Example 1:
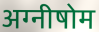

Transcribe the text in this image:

अग्नीषोम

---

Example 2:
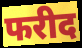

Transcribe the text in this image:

फरीद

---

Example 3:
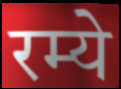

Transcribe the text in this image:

रम्ये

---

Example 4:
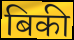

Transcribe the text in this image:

बिकी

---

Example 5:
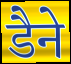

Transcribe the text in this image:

डैने